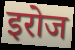
इरोज